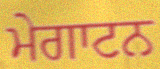
ਮੇਗਾਟਨ